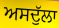
ਅਸਦੁੱਲਾ